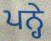
ਪਨ੍ਹੇ